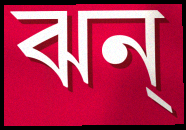
ঝন্